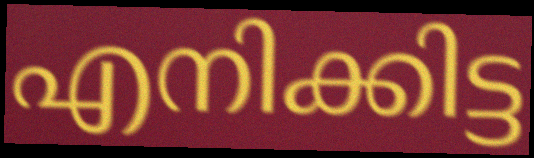
എനിക്കിട്ട